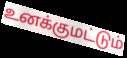
உனக்குமட்டும்